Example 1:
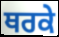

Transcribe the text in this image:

ਥਰਕੇ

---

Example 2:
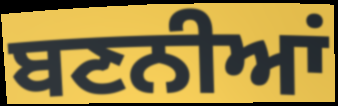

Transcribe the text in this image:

ਬਣਨੀਆਂ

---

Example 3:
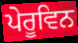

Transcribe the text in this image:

ਪੇਰੂਵਿਨ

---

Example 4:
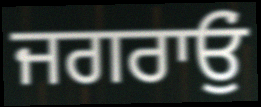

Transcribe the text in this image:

ਜਗਰਾਓੁਂ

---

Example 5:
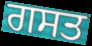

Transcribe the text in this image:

ਗਸਤ